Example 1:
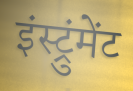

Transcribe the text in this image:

इंस्ट्रुंमेंट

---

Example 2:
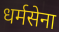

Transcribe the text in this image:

धर्मसेना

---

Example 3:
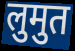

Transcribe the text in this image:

लुमुत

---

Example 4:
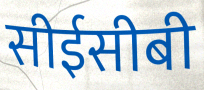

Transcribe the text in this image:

सीईसीबी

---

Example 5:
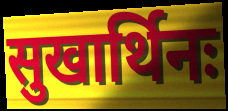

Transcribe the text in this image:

सुखार्थिनः